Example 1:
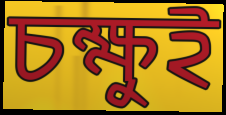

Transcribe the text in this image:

চক্ষুই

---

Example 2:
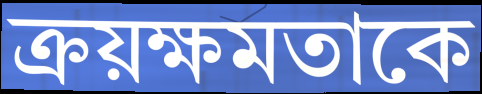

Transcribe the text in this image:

ক্রয়ক্ষমতাকে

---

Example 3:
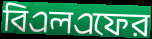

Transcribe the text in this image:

বিএলএফের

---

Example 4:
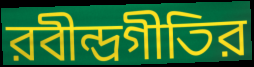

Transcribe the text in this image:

রবীন্দ্রগীতির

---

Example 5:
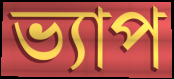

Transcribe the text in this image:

ভ্যাপ